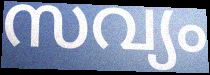
സവ്യം